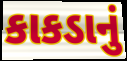
કાકડાનું